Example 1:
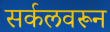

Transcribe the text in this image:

सर्कलवरून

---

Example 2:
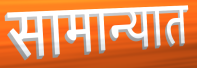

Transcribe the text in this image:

सामान्यात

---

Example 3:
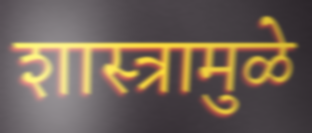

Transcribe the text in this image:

शास्त्रामुळे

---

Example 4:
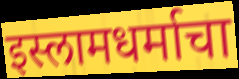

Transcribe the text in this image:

इस्लामधर्माचा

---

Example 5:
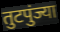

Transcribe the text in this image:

तुटपुंज्या